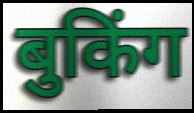
बुकिंग